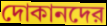
দোকানদের